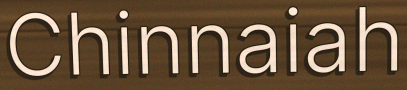
Chinnaiah